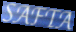
SAFTA